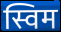
स्विम